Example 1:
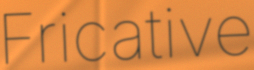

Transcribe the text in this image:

Fricative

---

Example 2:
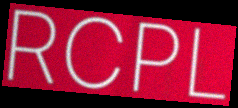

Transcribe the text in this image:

RCPL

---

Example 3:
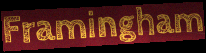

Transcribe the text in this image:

Framingham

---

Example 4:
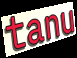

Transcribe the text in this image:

tanu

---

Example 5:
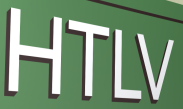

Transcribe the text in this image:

HTLV